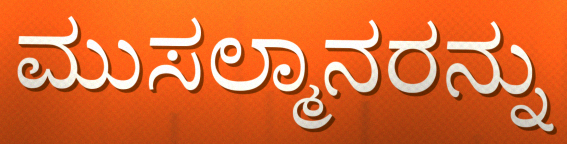
ಮುಸಲ್ಮಾನರನ್ನು